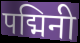
पद्मिनी